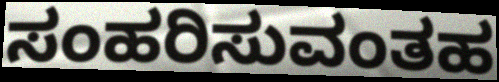
ಸಂಹರಿಸುವಂತಹ